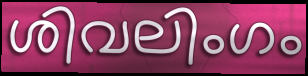
ശിവലിംഗം